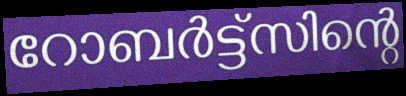
റോബർട്ട്സിന്റെ